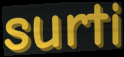
surti